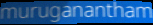
muruganantham